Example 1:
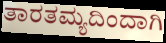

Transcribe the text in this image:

ತಾರತಮ್ಯದಿಂದಾಗಿ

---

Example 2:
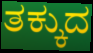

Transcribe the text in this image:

ತಕ್ಕುದ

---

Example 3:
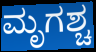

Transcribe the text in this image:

ಮೃಗಶ್ಚ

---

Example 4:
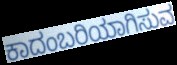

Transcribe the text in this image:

ಕಾದಂಬರಿಯಾಗಿಸುವ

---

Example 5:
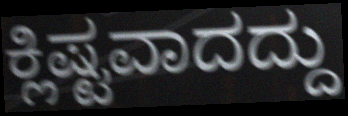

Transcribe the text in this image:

ಕ್ಲಿಷ್ಟವಾದದ್ದು